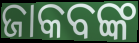
ଜାକବଙ୍କ